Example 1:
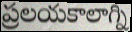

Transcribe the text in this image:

ప్రలయకాలాగ్ని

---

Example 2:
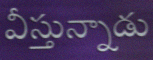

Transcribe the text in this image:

వీస్తున్నాడు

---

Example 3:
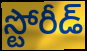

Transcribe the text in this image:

స్టోరీడ్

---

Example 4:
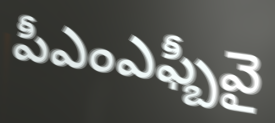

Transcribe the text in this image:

పీఎంఎఫ్బీవై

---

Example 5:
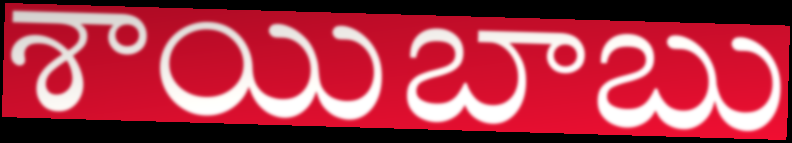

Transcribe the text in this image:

శాయిబాబు